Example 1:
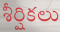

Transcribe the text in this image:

శీర్షికలు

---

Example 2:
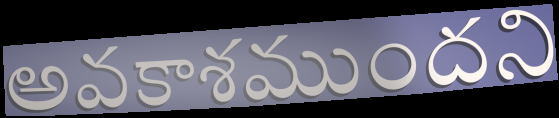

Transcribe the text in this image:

అవకాశముందని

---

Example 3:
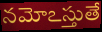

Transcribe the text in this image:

నమోఽస్తుతే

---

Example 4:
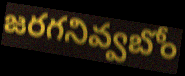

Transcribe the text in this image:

జరగనివ్వబోం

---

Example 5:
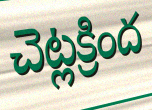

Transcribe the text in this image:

చెట్లక్రింద